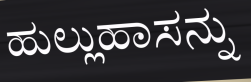
ಹುಲ್ಲುಹಾಸನ್ನು